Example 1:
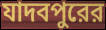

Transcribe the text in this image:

যাদবপুরের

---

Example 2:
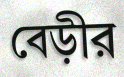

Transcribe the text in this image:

বেড়ীর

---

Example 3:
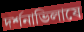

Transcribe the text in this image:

দর্শনাভিলাষে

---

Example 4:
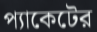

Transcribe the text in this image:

প্যাকেটের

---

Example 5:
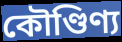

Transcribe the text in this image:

কৌণ্ডিণ্য